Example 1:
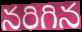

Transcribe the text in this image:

నరిగిన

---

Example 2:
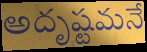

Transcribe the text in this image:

అదృష్టమనే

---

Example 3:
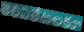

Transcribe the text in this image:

తెలివితేటలకూ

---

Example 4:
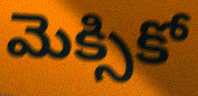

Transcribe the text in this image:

మెక్సికో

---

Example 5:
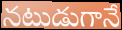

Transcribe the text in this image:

నటుడుగానే